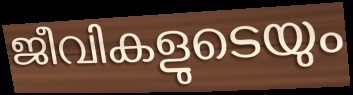
ജീവികളുടെയും